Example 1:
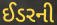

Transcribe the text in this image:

ઈડરની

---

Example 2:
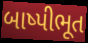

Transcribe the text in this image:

બાષ્પીભૂત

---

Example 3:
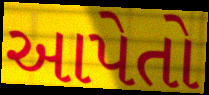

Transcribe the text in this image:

આપેતો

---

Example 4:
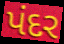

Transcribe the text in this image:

પંદર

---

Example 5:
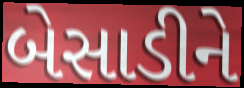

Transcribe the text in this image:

બેસાડીને